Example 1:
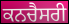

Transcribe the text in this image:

ਕਨਚੈਸਰੀ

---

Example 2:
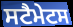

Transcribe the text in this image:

ਸਟੈਮੇਟਸ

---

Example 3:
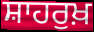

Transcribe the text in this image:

ਸ਼ਾਹਰੁਖ਼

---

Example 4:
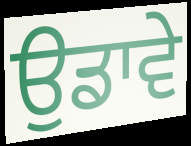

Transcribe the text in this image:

ਉਡਾਵੇ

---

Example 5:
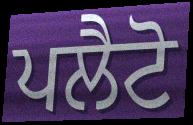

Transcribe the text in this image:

ਪਲੈਟੋ